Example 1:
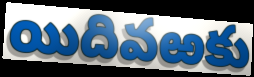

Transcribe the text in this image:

యిదివఱకు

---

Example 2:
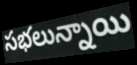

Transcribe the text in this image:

సభలున్నాయి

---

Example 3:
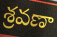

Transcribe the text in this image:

శ్రవణా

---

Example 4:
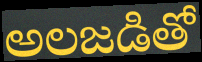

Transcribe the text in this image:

అలజడితో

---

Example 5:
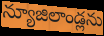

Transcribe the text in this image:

న్యూజిలాండ్లను